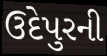
ઉદેપુરની